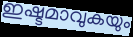
ഇഷ്ടമാവുകയും